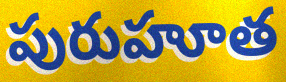
పురుహూత